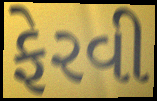
ફેરવી